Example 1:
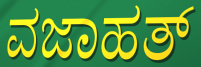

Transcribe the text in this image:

ವಜಾಹತ್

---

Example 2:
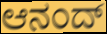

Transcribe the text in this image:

ಆನಂದ್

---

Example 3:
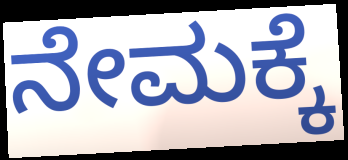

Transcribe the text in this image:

ನೇಮಕ್ಕೆ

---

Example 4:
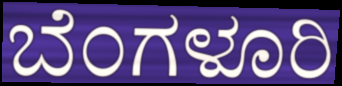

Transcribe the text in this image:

ಬೆಂಗಳೂರಿ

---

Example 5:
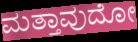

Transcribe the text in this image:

ಮತ್ತಾವುದೋ